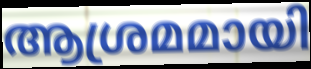
ആശ്രമമായി